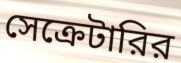
সেক্রেটারির